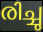
രിച്ചു